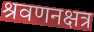
श्रवणनक्षत्र